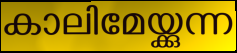
കാലിമേയ്ക്കുന്ന